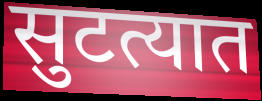
सुटत्यात